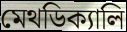
মেথডিক্যালি